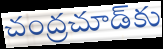
చంద్రచూడ్‌కు